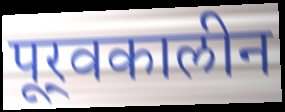
पूर्वकालीन